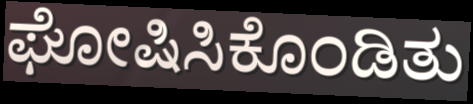
ಘೋಷಿಸಿಕೊಂಡಿತು